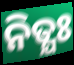
ନିତ୍ଯଃ